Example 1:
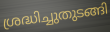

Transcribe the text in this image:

ശ്രദ്ധിച്ചുതുടങ്ങി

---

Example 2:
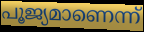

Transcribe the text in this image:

പൂജ്യമാണെന്ന്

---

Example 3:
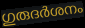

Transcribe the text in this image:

ഗുരുദർശനം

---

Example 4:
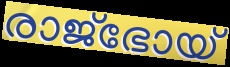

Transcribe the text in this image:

രാജ്ഭോയ്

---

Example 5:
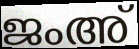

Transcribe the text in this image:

ജംഅ്